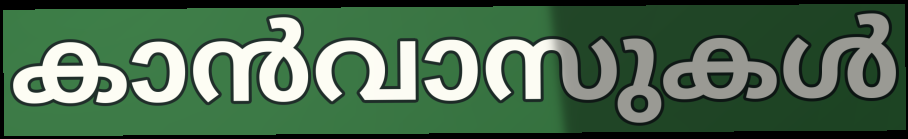
കാൻവാസുകൾ